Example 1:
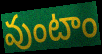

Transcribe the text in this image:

వుంటాం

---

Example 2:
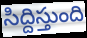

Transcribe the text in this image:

సిద్దిస్తుంది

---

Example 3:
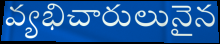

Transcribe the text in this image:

వ్యభిచారులునైన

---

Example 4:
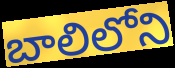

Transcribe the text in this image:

బాలిలోని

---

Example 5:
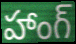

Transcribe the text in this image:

హాంగ్